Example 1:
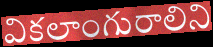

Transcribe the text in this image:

వికలాంగురాలిని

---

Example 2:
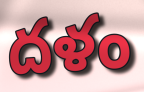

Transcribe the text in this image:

దళం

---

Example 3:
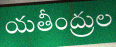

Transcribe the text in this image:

యతీంద్రుల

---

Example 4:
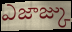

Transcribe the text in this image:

ఎజాజ్కు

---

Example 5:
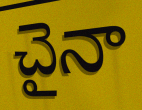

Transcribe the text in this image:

చైనా